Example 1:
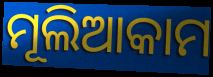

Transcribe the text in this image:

ମୂଲିଆକାମ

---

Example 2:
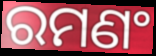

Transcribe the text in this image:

ରମଣଂ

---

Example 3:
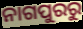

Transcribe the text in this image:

ନାଗପୁରରୁ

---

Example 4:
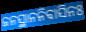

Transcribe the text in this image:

ଜନସ୍ଥାନନିବାସିନଃ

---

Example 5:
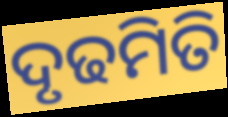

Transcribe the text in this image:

ଦୃଢମିତି